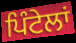
ਪਿੰਟੇਲਾਂ